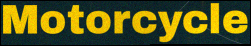
Motorcycle